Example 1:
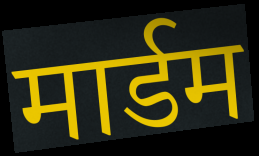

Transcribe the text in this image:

मार्डम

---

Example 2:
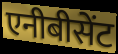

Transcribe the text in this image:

एनीबीसेंट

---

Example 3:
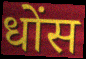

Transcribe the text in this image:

धोंस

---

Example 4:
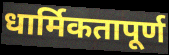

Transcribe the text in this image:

धार्मिकतापूर्ण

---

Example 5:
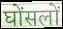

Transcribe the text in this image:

घोंसलों